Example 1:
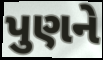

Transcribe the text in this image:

પુણને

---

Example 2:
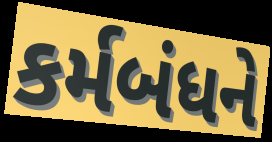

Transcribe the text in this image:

કર્મબંધને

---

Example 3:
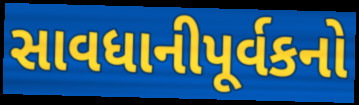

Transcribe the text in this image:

સાવધાનીપૂર્વકનો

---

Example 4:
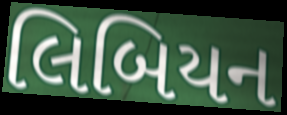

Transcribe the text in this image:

લિબિયન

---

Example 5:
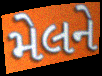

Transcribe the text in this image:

મેલને